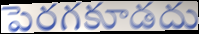
పెరగకూడదు